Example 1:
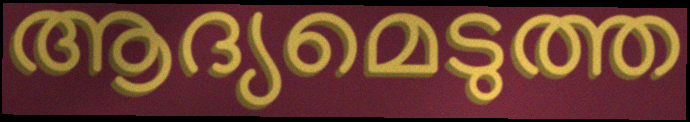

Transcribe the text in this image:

ആദ്യമെടുത്ത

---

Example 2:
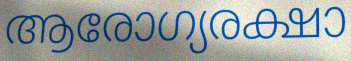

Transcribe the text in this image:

ആരോഗ്യരക്ഷാ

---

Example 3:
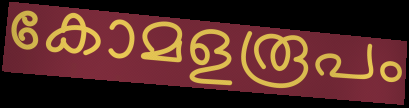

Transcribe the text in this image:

കോമളരൂപം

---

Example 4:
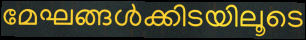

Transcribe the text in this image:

മേഘങ്ങൾക്കിടയിലൂടെ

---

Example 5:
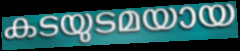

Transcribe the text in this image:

കടയുടമയായ